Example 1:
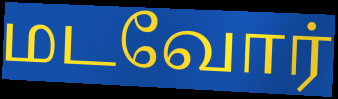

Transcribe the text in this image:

மடவோர்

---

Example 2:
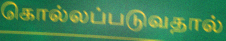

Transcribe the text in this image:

கொல்லப்படுவதால்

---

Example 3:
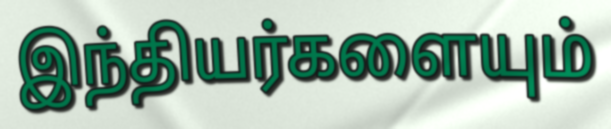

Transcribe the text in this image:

இந்தியர்களையும்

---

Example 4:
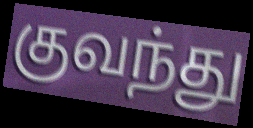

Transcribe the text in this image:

குவந்து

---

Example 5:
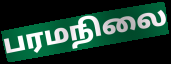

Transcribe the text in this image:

பரமநிலை